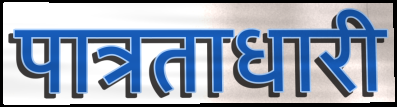
पात्रताधारी